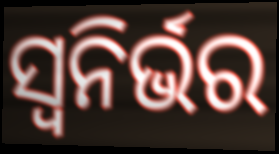
ସ୍ୱନିର୍ଭର